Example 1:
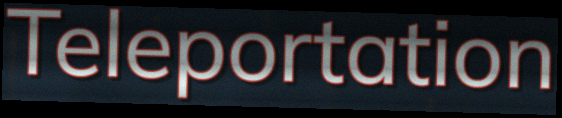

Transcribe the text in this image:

Teleportation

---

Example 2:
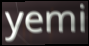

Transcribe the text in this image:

yemi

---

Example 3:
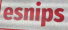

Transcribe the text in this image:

esnips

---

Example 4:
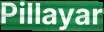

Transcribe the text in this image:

Pillayar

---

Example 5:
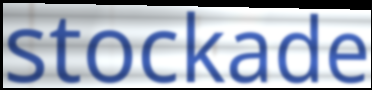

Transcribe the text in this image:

stockade